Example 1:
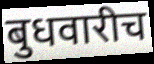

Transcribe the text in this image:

बुधवारीच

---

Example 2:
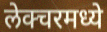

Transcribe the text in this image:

लेक्चरमध्ये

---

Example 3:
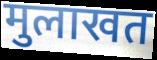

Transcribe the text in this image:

मुलाखत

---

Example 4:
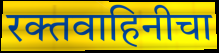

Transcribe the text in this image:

रक्तवाहिनीचा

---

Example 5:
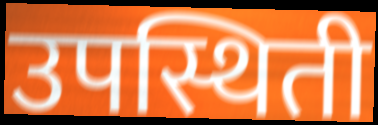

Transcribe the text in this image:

उपस्थिती